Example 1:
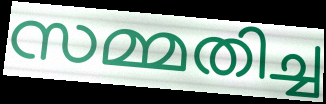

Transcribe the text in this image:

സമ്മതിച്ച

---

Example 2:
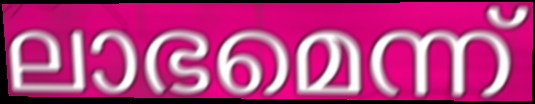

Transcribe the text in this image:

ലാഭമെന്ന്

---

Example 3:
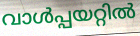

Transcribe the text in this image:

വാൾപ്പയറ്റിൽ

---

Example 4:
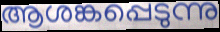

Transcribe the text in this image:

ആശങ്കപ്പെടുന്നു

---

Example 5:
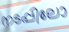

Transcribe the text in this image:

നടപ്പിലോ